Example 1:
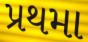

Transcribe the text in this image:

પ્રથમા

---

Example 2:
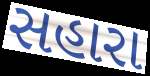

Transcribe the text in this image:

સહારા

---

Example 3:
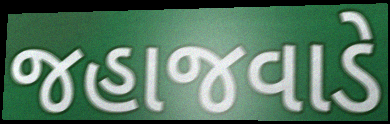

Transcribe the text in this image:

જહાજવાડે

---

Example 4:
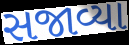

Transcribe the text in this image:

સજાવ્યા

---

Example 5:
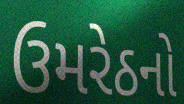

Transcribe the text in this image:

ઉમરેઠનો